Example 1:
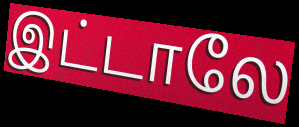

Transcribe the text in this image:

இட்டாலே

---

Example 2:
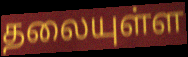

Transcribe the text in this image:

தலையுள்ள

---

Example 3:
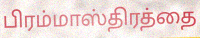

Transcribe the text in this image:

பிரம்மாஸ்திரத்தை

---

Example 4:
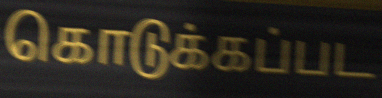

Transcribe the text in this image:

கொடுக்கப்பட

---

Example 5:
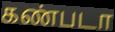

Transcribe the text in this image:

கண்படா